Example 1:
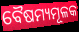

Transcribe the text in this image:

ବୈଷମ୍ୟମୂଳକ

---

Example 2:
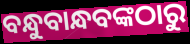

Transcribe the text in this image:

ବନ୍ଧୁବାନ୍ଧବଙ୍କଠାରୁ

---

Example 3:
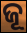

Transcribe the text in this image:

ଜୂ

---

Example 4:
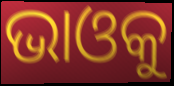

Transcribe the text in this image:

ଭାଓକୁ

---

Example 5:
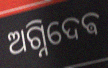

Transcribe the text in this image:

ଅଗ୍ନିଦେଵ